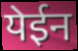
येईन